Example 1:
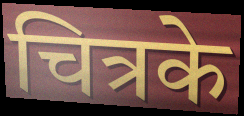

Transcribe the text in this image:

चित्रके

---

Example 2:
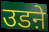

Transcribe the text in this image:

उडऩे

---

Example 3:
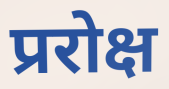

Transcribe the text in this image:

प्ररोक्ष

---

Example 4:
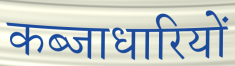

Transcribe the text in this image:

कब्जाधारियों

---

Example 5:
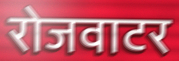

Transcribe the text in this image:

रोजवाटर